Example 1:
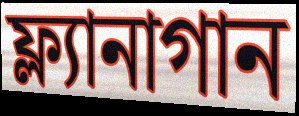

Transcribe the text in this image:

ফ্ল্যানাগান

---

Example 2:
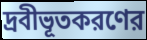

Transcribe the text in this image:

দ্রবীভূতকরণের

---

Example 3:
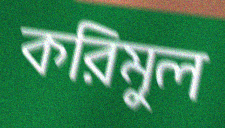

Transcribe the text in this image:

করিমুল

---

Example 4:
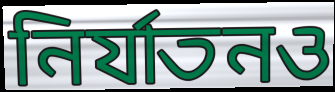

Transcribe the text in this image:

নির্যাতনও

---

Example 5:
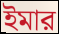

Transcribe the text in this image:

ইমার